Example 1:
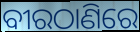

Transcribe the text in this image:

ବୀରଠାଣିରେ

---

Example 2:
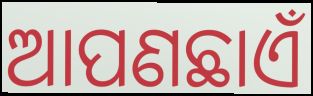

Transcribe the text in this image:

ଆପଣଛାଏଁ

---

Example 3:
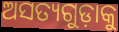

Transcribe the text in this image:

ଅସତ୍ୟଗୁଡ଼ାକୁ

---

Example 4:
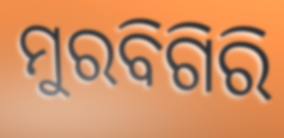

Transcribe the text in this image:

ମୁରବିଗିରି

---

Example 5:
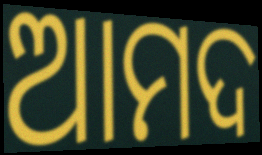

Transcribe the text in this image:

ଆମଦ